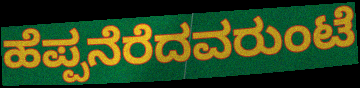
ಹೆಪ್ಪನೆರೆದವರುಂಟೆ